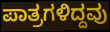
ಪಾತ್ರಗಳಿದ್ದವು